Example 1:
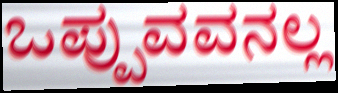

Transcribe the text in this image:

ಒಪ್ಪುವವನಲ್ಲ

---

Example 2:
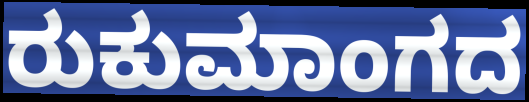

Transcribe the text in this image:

ರುಕುಮಾಂಗದ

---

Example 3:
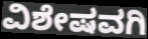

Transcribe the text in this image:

ವಿಶೇಷವಗಿ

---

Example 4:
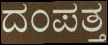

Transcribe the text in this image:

ದಂಪತ್ತ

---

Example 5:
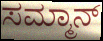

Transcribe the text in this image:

ಸಮ್ಮಾನ್